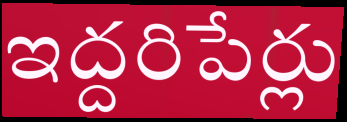
ఇద్దరిపేర్లు